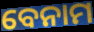
ବେନାମ